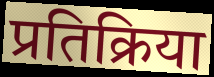
प्रतिक्रिया